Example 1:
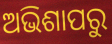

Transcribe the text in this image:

ଅଭିଶାପରୁ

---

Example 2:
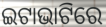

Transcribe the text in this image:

ଇଟାଭାଟିରେ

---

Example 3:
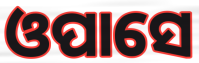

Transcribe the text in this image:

ଓପାସେ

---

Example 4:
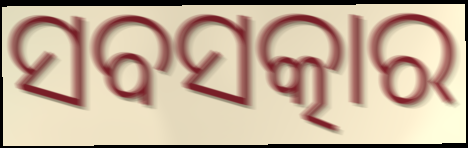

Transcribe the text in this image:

ସବସତ୍କାର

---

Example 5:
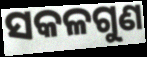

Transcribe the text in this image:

ସକଳଗୁଣ